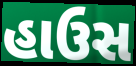
હાઉસ